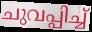
ചുവപ്പിച്ച്